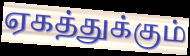
ஏகத்துக்கும்